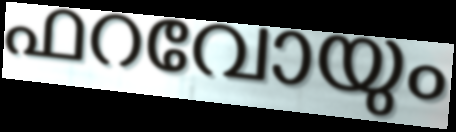
ഫറവോയും